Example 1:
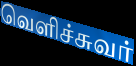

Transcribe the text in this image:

வெளிச்சுவர்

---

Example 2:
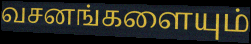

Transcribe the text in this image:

வசனங்களையும்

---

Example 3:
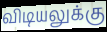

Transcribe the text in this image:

விடியலுக்கு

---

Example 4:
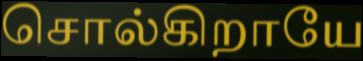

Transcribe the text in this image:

சொல்கிறாயே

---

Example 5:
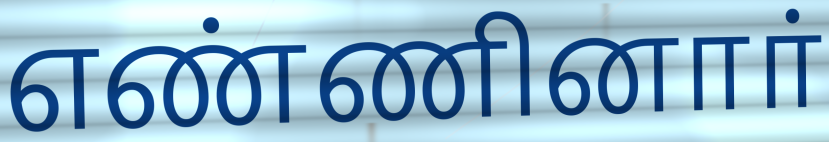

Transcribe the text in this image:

எண்ணினார்